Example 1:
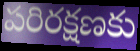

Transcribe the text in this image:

పరిరక్షణకు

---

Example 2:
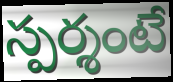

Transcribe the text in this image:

స్పర్శంటే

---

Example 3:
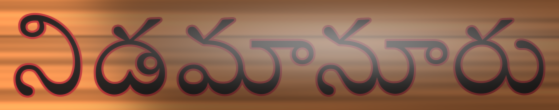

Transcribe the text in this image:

నిడమానూరు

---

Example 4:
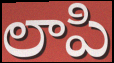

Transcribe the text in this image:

లాపి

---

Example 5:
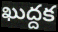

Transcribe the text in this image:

ఖుద్దక